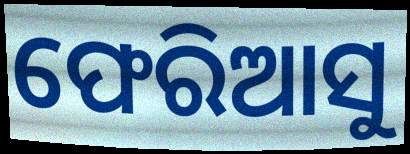
ଫେରିଆସୁ